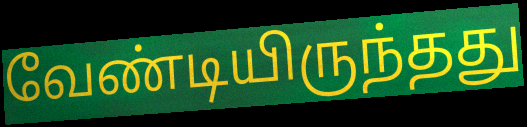
வேண்டியிருந்தது